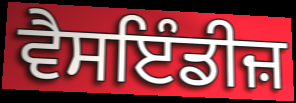
ਵੈਸਇੰਡੀਜ਼